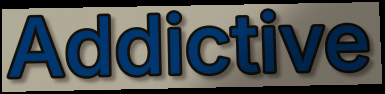
Addictive